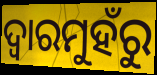
ଦ୍ଵାରମୁହଁରୁ